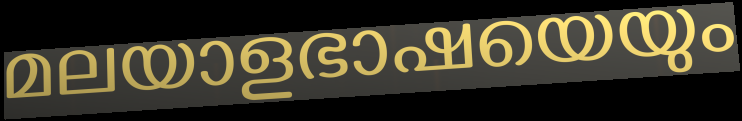
മലയാളഭാഷയെയും